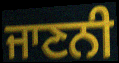
ਜਾਣਨੀ